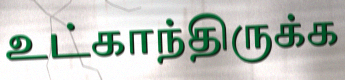
உட்காந்திருக்க